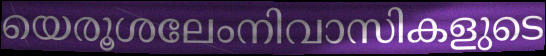
യെരൂശലേംനിവാസികളുടെ